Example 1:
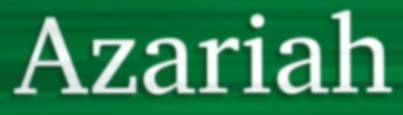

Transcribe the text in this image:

Azariah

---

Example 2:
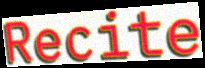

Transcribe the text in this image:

Recite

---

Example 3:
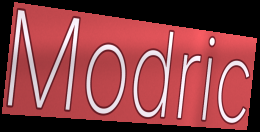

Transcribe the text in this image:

Modric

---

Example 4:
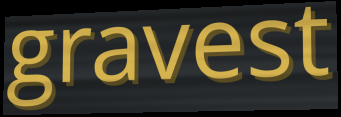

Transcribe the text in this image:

gravest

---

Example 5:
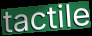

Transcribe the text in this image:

tactile